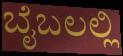
ಬೈಬಲಲ್ಲಿ